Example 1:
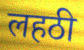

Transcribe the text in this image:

लहठी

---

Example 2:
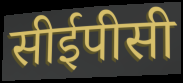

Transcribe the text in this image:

सीईपीसी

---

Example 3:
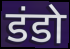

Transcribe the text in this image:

डंडो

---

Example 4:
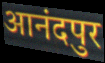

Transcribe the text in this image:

आनंदपुर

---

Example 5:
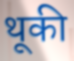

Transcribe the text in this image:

थूकी